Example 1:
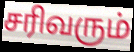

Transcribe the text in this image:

சரிவரும்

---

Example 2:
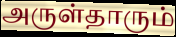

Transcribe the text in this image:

அருள்தாரும்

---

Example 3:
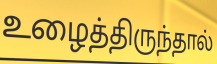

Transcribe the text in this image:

உழைத்திருந்தால்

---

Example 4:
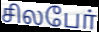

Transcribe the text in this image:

சிலபேர்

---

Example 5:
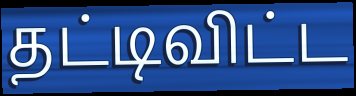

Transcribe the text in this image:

தட்டிவிட்ட